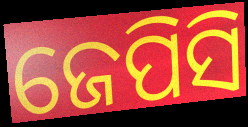
ଜେପିସି